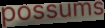
possums